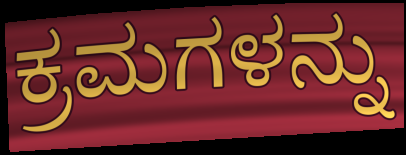
ಕ್ರಮಗಳನ್ನು